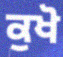
ਕੁਖੋ